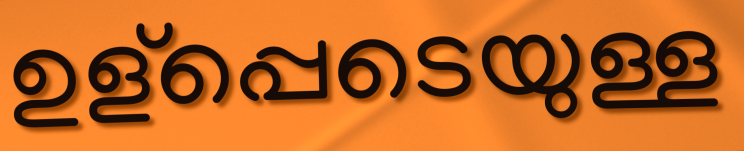
ഉള്പ്പെടെയുള്ള